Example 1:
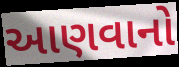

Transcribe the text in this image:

આણવાનો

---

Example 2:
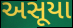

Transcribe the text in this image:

અસૂયા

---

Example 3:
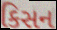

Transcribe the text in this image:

કિસન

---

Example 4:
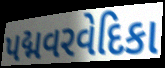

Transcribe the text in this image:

પદ્મવરવેદિકા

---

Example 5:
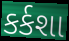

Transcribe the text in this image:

કર્કશા